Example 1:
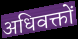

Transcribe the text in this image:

अधिवक्तों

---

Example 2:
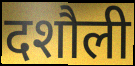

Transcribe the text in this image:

दशौली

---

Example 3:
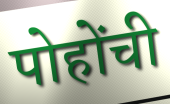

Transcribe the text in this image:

पोहोंची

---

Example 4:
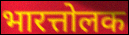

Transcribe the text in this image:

भारत्तोलक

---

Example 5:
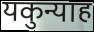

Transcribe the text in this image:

यकुन्याह